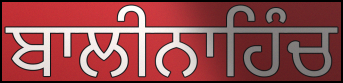
ਬਾਲੀਨਾਹਿੰਚ